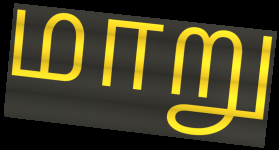
மாறு